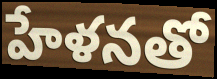
హేళనతో